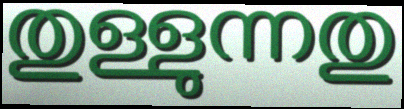
തുള്ളുന്നതു